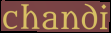
chandi